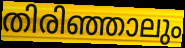
തിരിഞ്ഞാലും